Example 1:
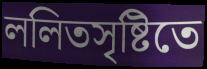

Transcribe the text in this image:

ললিতসৃষ্টিতে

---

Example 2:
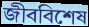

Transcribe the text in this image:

জীববিশেষ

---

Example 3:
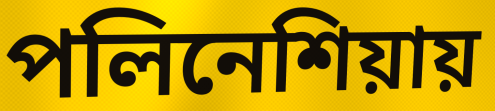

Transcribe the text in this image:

পলিনেশিয়ায়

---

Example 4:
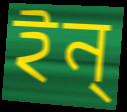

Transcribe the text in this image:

ইন্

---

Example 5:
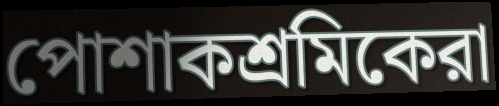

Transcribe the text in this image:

পোশাকশ্রমিকেরা